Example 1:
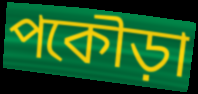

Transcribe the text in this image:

পকৌড়া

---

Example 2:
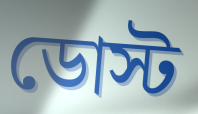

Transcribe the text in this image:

ডোস্ট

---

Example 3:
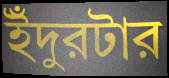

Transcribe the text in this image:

ইঁদুরটার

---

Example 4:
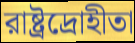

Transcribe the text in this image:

রাষ্ট্রদ্রোহীতা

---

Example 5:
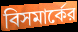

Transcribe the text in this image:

বিসমার্কের